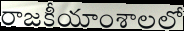
రాజకీయాంశాలలో